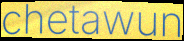
chetawun